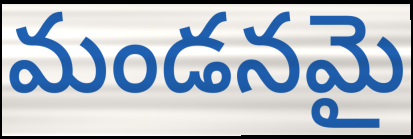
మండనమై